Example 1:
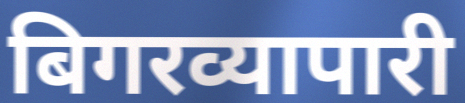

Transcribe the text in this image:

बिगरव्यापारी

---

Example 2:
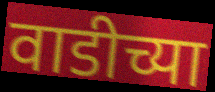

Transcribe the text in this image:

वाडीच्या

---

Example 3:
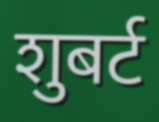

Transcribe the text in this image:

शुबर्ट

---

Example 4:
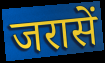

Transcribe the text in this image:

जरासें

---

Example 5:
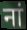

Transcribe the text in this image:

नां